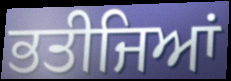
ਭਤੀਜਿਆਂ